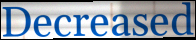
Decreased